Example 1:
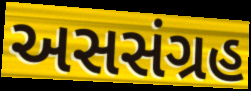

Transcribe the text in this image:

અસસંગ્રહ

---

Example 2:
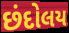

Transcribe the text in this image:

છંદોલય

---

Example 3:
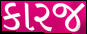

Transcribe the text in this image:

કારજ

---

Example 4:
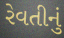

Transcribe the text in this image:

રેવતીનું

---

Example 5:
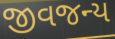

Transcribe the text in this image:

જીવજન્ય